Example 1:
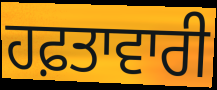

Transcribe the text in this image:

ਹਫ਼ਤਾਵਾਰੀ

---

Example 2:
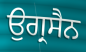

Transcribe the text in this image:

ਉਗ੍ਰਸੈਨ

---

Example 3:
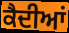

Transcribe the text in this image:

ਕੈਦੀਆਂ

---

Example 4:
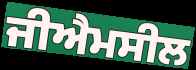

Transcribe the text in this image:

ਜੀਐਮਸੀਲ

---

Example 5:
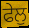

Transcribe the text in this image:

ਫੇਲੁ